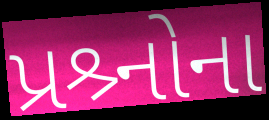
પ્રશ્ર્નોના